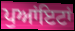
ਪੁਆਂਇਟਾਂ